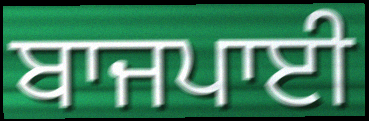
ਬਾਜਪਾਈ